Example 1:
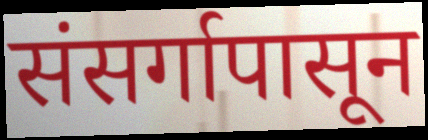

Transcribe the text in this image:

संसर्गापासून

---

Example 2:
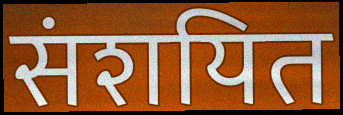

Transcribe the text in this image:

संशयित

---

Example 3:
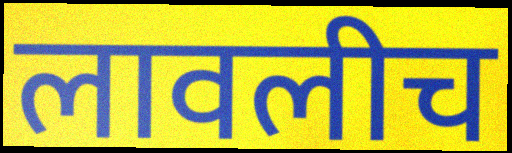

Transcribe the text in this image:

लावलीच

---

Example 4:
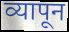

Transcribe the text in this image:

व्यापून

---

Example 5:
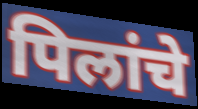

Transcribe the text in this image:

पिलांचे